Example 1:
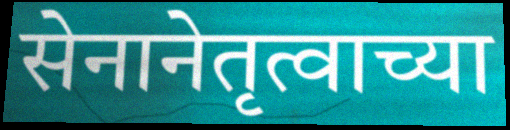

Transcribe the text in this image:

सेनानेतृत्वाच्या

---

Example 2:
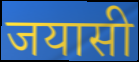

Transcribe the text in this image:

जयासी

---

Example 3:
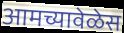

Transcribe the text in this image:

आमच्यावेळेस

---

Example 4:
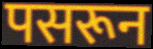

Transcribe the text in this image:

पसरून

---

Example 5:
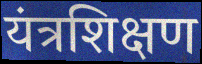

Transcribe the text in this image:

यंत्रशिक्षण